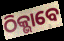
ଠିକ୍ଭାବେ